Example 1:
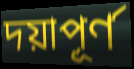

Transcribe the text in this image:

দয়াপূর্ণ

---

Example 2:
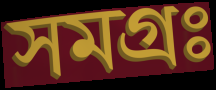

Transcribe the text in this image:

সমগ্রঃ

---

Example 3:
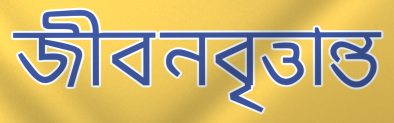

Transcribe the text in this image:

জীবনবৃত্তান্ত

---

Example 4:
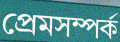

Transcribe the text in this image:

প্রেমসম্পর্ক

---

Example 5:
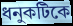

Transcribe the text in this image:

ধনুকটিকে